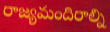
రాజ్యమందిరాల్ని